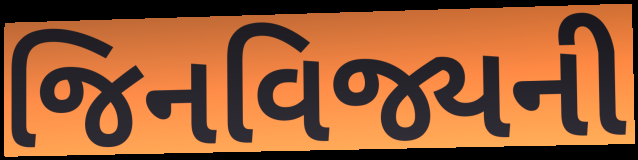
જિનવિજ્યની